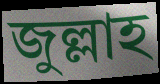
জুল্লাহ